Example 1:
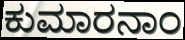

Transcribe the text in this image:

ಕುಮಾರನಾಂ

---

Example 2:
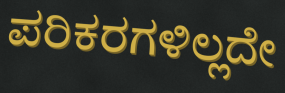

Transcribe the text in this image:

ಪರಿಕರಗಳಿಲ್ಲದೇ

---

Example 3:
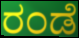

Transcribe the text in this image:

ರಂಡೆ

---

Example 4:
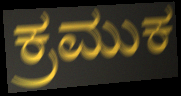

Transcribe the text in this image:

ಕ್ರಮುಕ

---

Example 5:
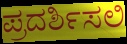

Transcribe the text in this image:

ಪ್ರದರ್ಶಿಸಲಿ